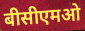
बीसीएमओ